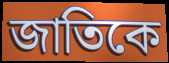
জাতিকে